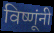
विष्णूंनी